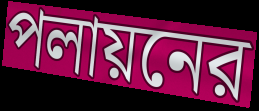
পলায়নের